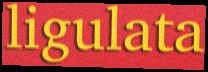
ligulata